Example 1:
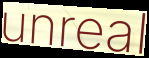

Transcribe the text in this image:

unreal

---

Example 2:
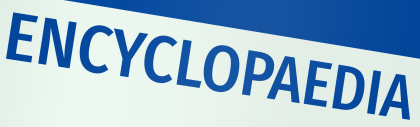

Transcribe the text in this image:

ENCYCLOPAEDIA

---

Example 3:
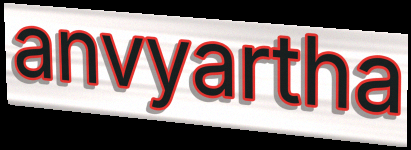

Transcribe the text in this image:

anvyartha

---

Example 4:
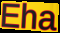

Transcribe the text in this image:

Eha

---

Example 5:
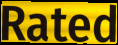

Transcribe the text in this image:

Rated